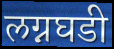
लग्नघडी